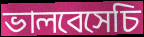
ভালবেসেচি